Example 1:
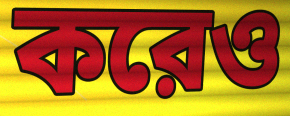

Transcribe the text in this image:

করেও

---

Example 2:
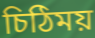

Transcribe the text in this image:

চিঠিময়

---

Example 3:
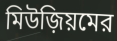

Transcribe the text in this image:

মিউজ়িয়মের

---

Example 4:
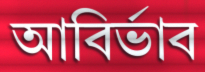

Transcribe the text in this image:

আবির্ভাব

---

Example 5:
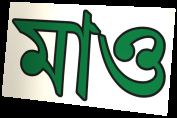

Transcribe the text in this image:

মাও